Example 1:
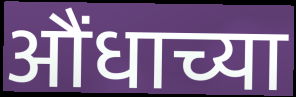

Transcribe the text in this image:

औंधाच्या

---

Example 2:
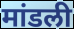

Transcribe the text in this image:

मांडली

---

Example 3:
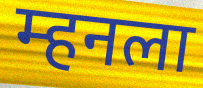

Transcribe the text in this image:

म्हनला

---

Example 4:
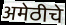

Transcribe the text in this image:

अमेठीचे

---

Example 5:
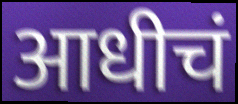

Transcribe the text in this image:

आधीचं